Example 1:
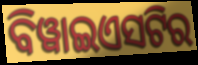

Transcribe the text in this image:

ବିୱାଇଏସଟିର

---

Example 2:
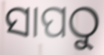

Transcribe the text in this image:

ସାପଠୁ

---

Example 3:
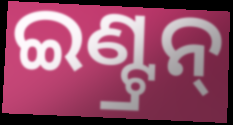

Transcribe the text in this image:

ଇଣ୍ଟ୍ରନ୍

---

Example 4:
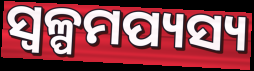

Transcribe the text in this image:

ସ୍ୱଳ୍ପମପ୍ୟସ୍ୟ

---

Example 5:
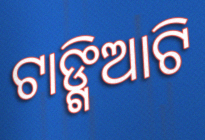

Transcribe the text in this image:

ଟାଙ୍ଗିଆଟି